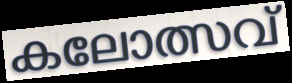
കലോത്സവ്